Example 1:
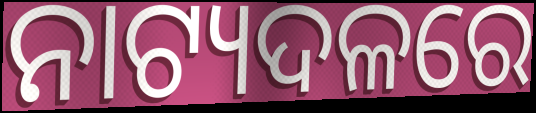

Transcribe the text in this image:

ନାଟ୍ୟଦଳରେ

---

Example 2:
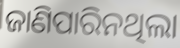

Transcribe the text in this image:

ଜାଣିପାରିନଥିଲା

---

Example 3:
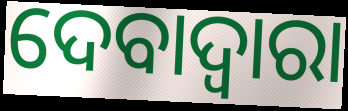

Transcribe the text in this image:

ଦେବାଦ୍ବାରା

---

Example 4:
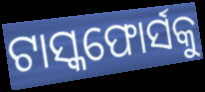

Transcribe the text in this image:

ଟାସ୍କଫୋର୍ସକୁ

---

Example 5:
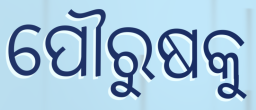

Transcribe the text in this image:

ପୌରୁଷକୁ